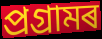
প্ৰগ্ৰামৰ